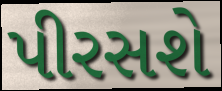
પીરસશે